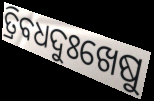
ତ୍ରିବଧଦୁଃଖେଷୁ